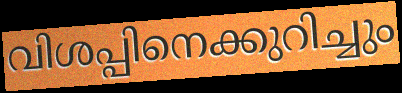
വിശപ്പിനെക്കുറിച്ചും